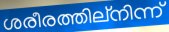
ശരീരത്തില്നിന്ന്